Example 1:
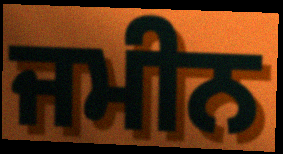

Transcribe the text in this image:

ਜਮੀਨ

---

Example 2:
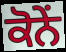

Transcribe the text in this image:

ਕੋਨੇਂ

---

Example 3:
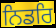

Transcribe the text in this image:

ਨਿਡਰਿ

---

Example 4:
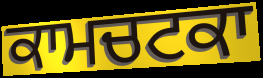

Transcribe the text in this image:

ਕਾਮਚਟਕਾ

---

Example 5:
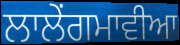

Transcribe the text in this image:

ਲਾਲੇਂਗਮਾਵੀਆ